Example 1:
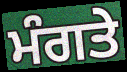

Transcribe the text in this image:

ਮੰਗਤੇ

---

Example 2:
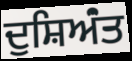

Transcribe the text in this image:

ਦੁਸ਼ਿਅਂੰਤ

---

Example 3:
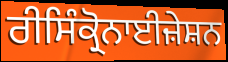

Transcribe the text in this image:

ਰੀਸਿੰਕ੍ਰੋਨਾਈਜ਼ੇਸ਼ਨ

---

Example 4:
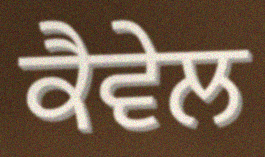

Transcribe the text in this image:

ਕੈਵੇਲ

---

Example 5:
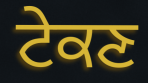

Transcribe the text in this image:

ਟੇਕਣ